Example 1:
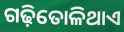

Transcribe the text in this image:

ଗଢ଼ିତୋଳିଥାଏ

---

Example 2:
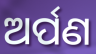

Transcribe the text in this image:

ଅର୍ପଣ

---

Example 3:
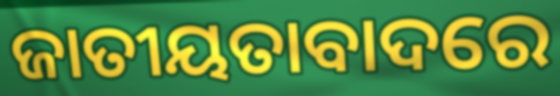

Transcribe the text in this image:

ଜାତୀୟତାବାଦରେ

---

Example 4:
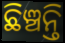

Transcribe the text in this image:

ଛିଞ୍ଚନ୍ତି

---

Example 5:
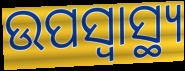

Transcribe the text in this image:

ଉପସ୍ୱାସ୍ଥ୍ୟ